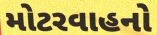
મોટરવાહનો